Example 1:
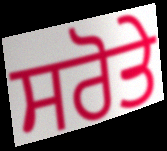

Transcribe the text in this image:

ਸਰੋਤੇ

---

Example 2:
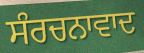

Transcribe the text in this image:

ਸੰਰਚਨਾਵਾਦ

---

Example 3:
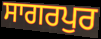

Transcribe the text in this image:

ਸਾਗਰਪੁਰ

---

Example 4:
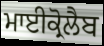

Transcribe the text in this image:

ਮਾਈਕ੍ਰੋਲੈਬ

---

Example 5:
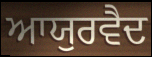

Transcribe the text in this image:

ਆਯੁਰਵੈਦ